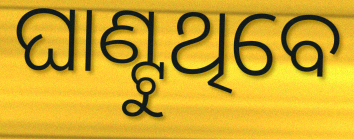
ଘାଣ୍ଟୁଥିବେ